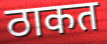
ठाकत